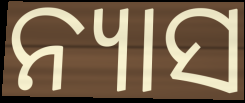
ନ୍ୟାସ